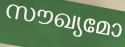
സൗഖ്യമോ